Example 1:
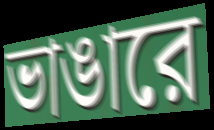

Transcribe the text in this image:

ভাঙারে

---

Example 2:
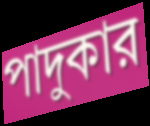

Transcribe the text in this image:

পাদুকার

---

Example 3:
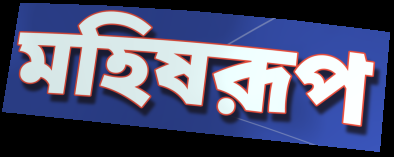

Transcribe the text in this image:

মহিষরূপ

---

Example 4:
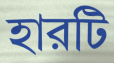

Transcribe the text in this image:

হারটি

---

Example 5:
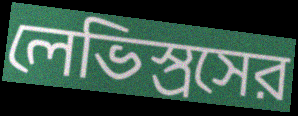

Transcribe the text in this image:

লেভিস্ত্রসের